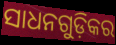
ସାଧନଗୁଡ଼ିକର